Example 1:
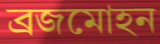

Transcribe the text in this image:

ব্ৰজমোহন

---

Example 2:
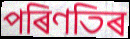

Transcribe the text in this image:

পৰিণতিৰ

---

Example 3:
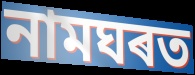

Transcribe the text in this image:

নামঘৰত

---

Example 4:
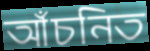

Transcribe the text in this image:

আঁচনিত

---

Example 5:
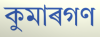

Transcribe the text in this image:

কুমাৰগণ